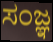
ಸಂಜ್ಞ